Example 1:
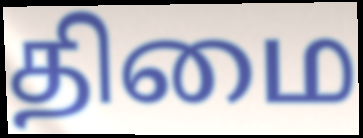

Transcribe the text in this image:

திமை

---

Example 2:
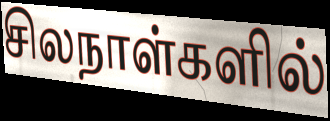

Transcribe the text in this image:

சிலநாள்களில்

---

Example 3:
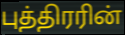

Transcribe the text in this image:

புத்திரரின்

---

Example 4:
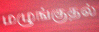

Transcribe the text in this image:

மழுங்குதல்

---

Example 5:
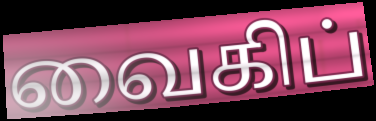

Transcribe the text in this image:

வைகிப்